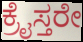
ಕ್ರೈಸ್ತರೇ